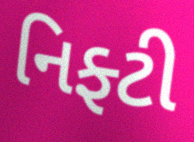
નિફ્ટી